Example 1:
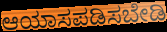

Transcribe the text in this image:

ಆಯಾಸಪಡಿಸಬೇಡಿ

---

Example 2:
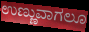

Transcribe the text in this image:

ಉಣ್ಣುವಾಗಲೂ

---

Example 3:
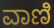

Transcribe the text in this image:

ವಾಣಿ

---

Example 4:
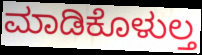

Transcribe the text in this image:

ಮಾಡಿಕೊಳುಲ್ತ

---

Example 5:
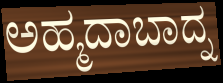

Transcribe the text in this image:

ಅಹ್ಮದಾಬಾದ್ನ